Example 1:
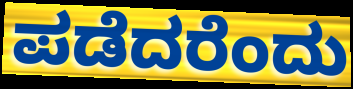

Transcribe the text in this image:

ಪಡೆದರೆಂದು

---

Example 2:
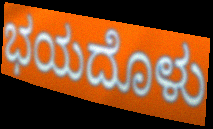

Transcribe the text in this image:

ಭಯದೊಳು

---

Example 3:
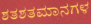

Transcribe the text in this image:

ಶತಶತಮಾನಗಳ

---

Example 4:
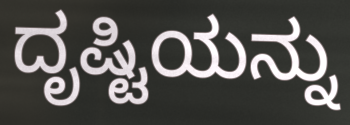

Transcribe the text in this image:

ದೃಷ್ಟಿಯನ್ನು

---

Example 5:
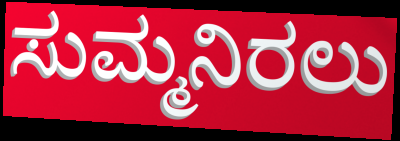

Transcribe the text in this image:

ಸುಮ್ಮನಿರಲು